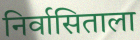
निर्वासिताला